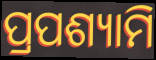
ପ୍ରପଶ୍ୟାମି